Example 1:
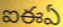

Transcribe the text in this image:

ఐఈఏ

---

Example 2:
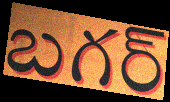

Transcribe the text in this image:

బగర్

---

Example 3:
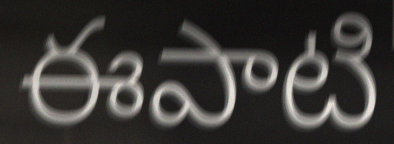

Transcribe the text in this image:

ఈపాటి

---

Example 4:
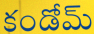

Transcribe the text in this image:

కండోమ్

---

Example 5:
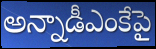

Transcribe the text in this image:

అన్నాడీఎంకేపై